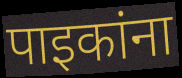
पाइकांना